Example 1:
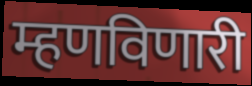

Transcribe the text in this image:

म्हणविणारी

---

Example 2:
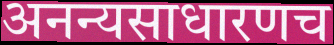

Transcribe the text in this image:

अनन्यसाधारणच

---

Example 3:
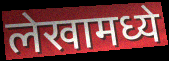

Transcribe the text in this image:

लेखामध्ये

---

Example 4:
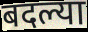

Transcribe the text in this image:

बदल्या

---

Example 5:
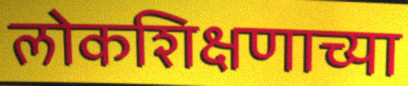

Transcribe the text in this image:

लोकशिक्षणाच्या